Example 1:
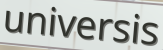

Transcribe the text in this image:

universis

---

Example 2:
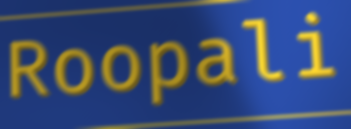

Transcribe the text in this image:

Roopali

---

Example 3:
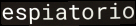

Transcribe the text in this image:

espiatorio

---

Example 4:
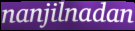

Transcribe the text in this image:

nanjilnadan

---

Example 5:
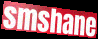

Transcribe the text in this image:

smshane